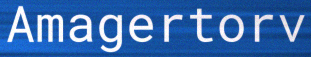
Amagertorv